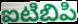
ఐటిబిపి